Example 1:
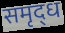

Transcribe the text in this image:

समृद्ध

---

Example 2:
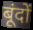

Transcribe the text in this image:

बूंदों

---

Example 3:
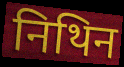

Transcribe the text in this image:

निथिन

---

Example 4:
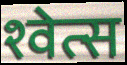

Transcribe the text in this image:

श्वेत्स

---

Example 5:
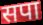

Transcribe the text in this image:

सपा